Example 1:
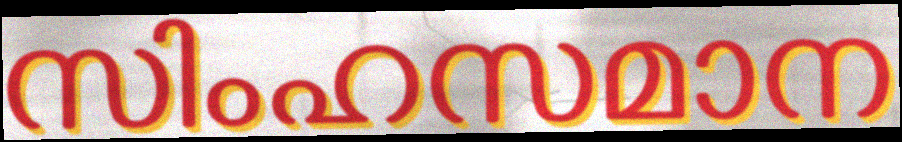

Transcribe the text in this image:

സിംഹസമാന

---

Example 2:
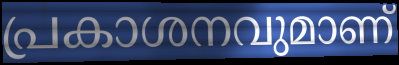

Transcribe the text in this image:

പ്രകാശനവുമാണ്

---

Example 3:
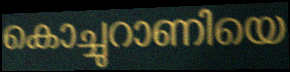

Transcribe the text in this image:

കൊച്ചുറാണിയെ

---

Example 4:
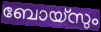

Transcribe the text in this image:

ബോയ്സും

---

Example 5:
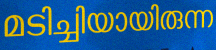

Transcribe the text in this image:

മടിച്ചിയായിരുന്ന